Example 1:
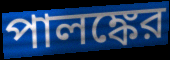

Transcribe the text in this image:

পালঙ্কের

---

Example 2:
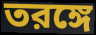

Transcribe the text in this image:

তরঙ্গে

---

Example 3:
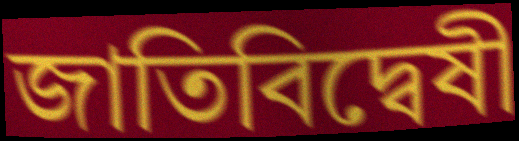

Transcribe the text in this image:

জাতিবিদ্বেষী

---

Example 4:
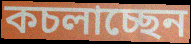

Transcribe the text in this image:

কচলাচ্ছেন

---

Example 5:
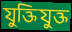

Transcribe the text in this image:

যুক্তিযুক্ত